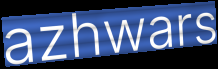
azhwars